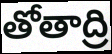
తోతాద్రి